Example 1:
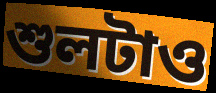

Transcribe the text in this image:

শুলটাও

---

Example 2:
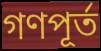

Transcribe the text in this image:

গণপূর্ত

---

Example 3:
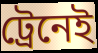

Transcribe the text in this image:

ট্রেনেই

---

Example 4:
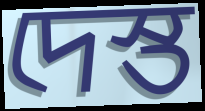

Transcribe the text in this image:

দেস্ত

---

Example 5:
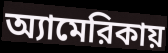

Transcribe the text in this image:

অ্যামেরিকায়